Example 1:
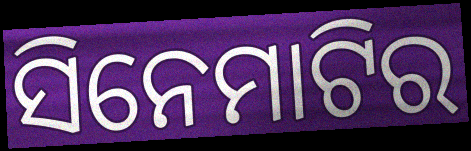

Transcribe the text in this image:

ସିନେମାଟିର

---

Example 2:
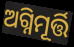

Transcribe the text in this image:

ଅଗ୍ନିମୂର୍ତ୍ତି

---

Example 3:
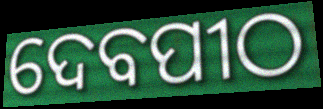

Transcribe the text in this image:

ଦେବପୀଠ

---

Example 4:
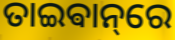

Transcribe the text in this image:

ତାଇଵାନ୍‌ରେ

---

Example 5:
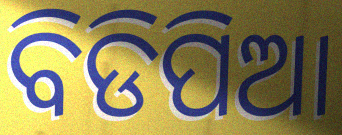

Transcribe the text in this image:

ବିଡିପିଆ